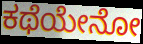
ಕಥೆಯೇನೋ